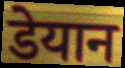
डेयान